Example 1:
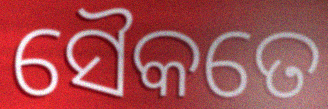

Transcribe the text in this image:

ସୈକତେ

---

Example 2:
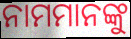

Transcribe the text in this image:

ନାମମାନଙ୍କୁ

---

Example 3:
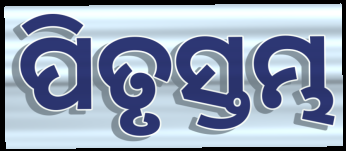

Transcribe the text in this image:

ପିତୃସ୍ତମ୍ଭ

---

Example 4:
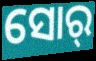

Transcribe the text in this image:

ସୋର୍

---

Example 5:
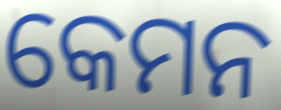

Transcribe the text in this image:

କେମନ